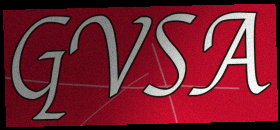
GVSA